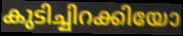
കുടിച്ചിറക്കിയോ